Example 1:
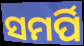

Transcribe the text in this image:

ସମର୍ପି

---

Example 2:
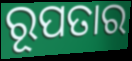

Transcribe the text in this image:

ରୂପତାର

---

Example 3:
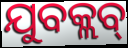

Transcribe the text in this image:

ଯୁବକ୍ଲବ୍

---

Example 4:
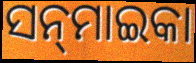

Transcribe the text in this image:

ସନ୍‌ମାଇକା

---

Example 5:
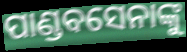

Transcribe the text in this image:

ପାଣ୍ଡବସେନାଙ୍କୁ